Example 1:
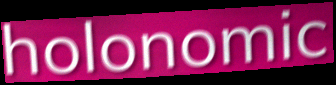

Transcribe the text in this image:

holonomic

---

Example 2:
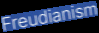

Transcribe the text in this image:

Freudianism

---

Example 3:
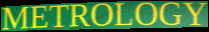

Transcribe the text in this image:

METROLOGY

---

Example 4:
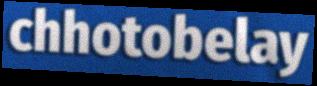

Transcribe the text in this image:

chhotobelay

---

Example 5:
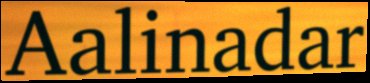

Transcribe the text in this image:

Aalinadar